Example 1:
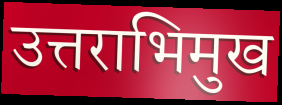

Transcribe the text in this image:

उत्तराभिमुख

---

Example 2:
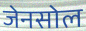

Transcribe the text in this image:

जेनसोल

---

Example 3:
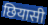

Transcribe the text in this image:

छियासी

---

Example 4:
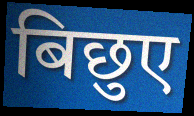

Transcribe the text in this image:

बिछुए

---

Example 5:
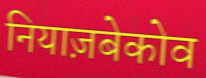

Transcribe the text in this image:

नियाज़बेकोव